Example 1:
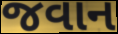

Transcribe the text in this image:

જવાન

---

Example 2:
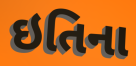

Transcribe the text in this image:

ઇતિના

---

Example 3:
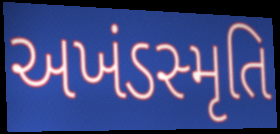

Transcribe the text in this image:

અખંડસ્મૃતિ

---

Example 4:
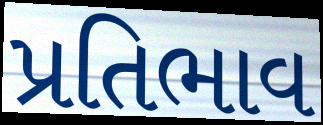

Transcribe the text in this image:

પ્રતિભાવ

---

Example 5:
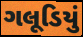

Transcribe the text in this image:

ગલૂડિયું